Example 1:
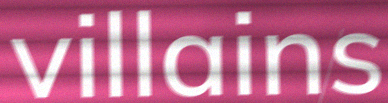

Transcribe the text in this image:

villains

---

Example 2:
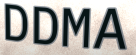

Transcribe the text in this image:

DDMA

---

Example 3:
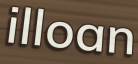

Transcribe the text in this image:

illoan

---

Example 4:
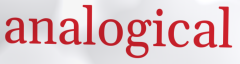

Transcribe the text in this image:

analogical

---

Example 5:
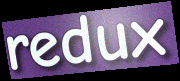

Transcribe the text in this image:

redux